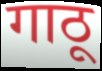
गाठू